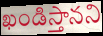
ఖండిస్తానని